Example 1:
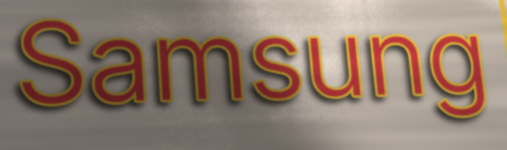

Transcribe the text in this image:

Samsung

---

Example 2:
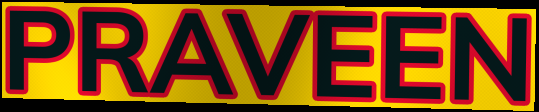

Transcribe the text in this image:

PRAVEEN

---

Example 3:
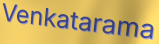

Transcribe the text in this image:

Venkatarama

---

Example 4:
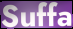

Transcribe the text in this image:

Suffa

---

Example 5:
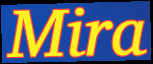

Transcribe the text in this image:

Mira